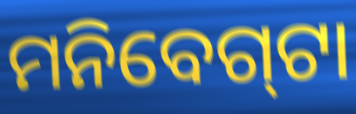
ମନିବେଗ୍‍ଟା